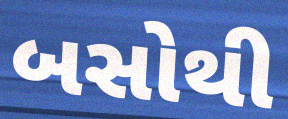
બસોથી